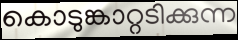
കൊടുങ്കാറ്റടിക്കുന്ന